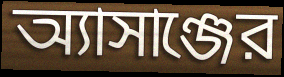
অ্যাসাঞ্জের